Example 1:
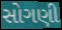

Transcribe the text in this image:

સોગણી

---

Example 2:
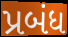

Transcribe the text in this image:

પ્રબંધ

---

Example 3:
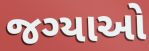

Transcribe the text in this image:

જગ્યાઓ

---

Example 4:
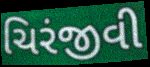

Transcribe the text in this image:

ચિરંજીવી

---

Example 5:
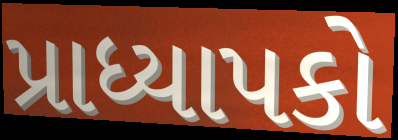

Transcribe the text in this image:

પ્રાધ્યાપકો